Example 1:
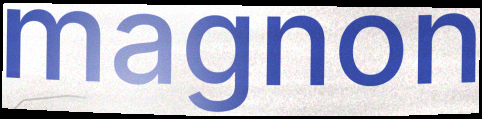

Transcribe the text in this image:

magnon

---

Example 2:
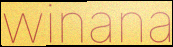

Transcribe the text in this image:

winana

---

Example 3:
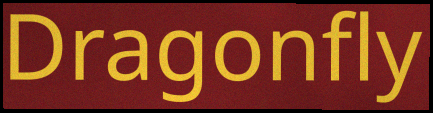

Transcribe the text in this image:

Dragonfly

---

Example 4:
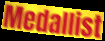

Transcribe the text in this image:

Medallist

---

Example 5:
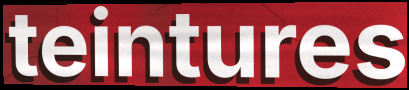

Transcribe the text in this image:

teintures